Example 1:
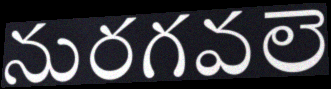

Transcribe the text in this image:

నురగవలె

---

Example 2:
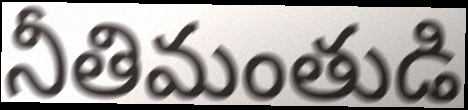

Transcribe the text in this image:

నీతిమంతుడి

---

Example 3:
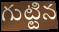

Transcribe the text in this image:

గుట్టిన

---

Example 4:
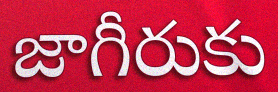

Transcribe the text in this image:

జాగీరుకు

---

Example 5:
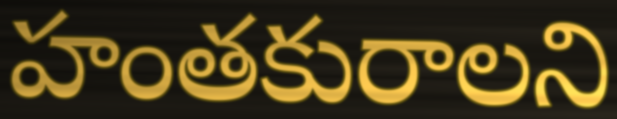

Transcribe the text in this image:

హంతకురాలని